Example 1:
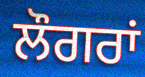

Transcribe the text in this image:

ਲੌਗਰਾਂ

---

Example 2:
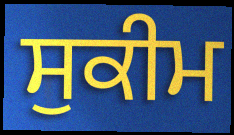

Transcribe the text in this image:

ਸੁਕੀਮ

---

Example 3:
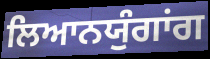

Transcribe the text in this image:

ਲਿਆਨਯੁੰਗਾਂਗ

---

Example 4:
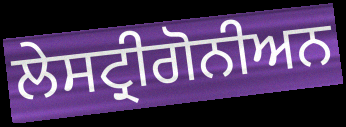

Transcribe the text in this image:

ਲੇਸਟ੍ਰੀਗੋਨੀਅਨ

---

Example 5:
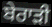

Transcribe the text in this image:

ਬੇਰਾੜੀ